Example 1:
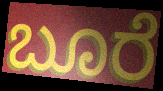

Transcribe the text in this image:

ಬೂರೆ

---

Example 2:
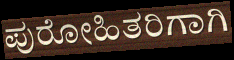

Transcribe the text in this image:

ಪುರೋಹಿತರಿಗಾಗಿ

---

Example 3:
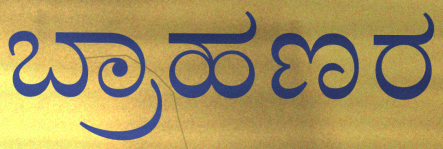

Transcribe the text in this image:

ಬ್ರಾಹಣರ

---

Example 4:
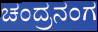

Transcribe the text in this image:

ಚಂದ್ರನಂಗ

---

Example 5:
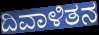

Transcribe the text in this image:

ದಿವಾಳಿತನ